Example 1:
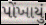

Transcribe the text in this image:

પોંખાયું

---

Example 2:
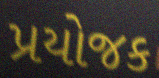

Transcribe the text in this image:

પ્રયોજક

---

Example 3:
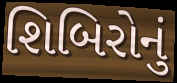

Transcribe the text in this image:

શિબિરોનું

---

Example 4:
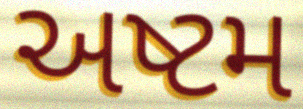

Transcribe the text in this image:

અષ્ટમ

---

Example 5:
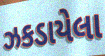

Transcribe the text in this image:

ઝકડાયેલા